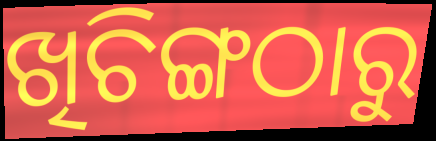
ଖିଚିଙ୍ଗଠାରୁ